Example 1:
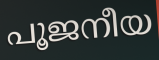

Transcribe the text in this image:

പൂജനീയ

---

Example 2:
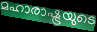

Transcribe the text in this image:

മഹാരാഷ്ട്രയുടെ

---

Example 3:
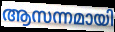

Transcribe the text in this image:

ആസന്നമായി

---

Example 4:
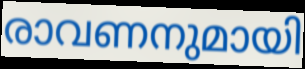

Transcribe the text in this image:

രാവണനുമായി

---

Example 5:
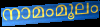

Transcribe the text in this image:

നാമംമൂലം